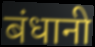
बंधानी